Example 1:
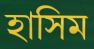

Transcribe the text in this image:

হাসিম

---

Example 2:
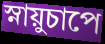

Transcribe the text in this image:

স্নায়ুচাপে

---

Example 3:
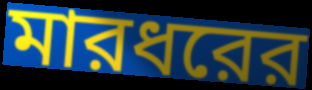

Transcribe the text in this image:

মারধরের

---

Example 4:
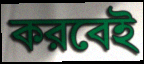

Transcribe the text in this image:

করবেই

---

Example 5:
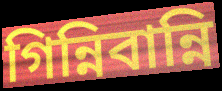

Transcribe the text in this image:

গিন্নিবান্নি